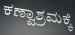
ಕಣ್ವಾಶ್ರಮಕ್ಕೆ